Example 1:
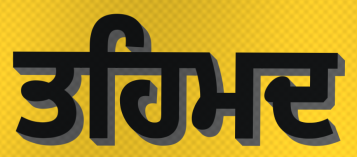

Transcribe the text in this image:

ਤਹਿਮਦ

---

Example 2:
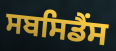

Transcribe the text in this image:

ਸਬਸਿਡੈਂਸ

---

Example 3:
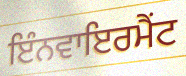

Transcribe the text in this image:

ਇੰਨਵਾਇਰਮੈਂਟ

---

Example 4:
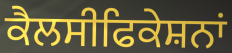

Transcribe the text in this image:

ਕੈਲਸੀਫਿਕੇਸ਼ਨਾਂ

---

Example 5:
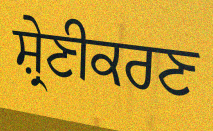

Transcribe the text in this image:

ਸ਼੍ਰੇਣੀਕਰਣ